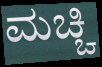
ಮಚ್ಚಿ